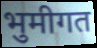
भुमीगत